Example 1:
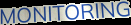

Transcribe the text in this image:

MONITORING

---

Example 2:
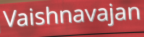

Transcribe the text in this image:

Vaishnavajan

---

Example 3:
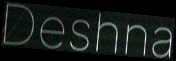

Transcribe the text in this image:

Deshna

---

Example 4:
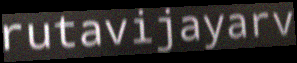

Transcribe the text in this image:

rutavijayarv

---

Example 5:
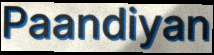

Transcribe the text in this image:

Paandiyan